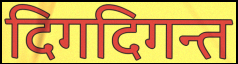
दिगदिगन्त